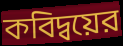
কবিদ্বয়ের